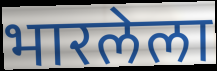
भारलेला